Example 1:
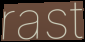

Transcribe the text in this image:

rast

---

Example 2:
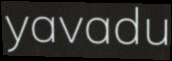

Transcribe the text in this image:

yavadu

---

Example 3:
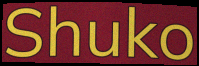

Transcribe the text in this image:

Shuko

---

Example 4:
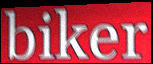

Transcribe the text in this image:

biker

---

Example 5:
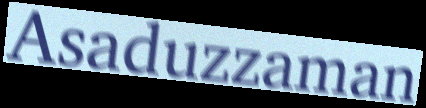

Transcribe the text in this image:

Asaduzzaman